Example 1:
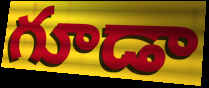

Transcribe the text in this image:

గూడా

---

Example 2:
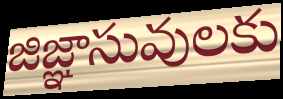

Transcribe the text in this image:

జిజ్ఞాసువులకు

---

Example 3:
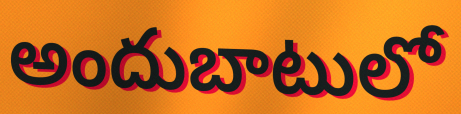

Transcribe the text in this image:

అందుబాటులో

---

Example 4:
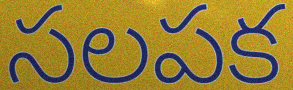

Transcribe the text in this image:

సలపక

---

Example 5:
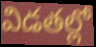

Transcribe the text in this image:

విడతల్లో